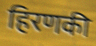
हिरणकी